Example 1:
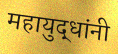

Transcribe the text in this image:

महायुद्धांनी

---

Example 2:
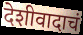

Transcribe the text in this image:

देशीवादाचं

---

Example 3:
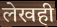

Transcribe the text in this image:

लेखही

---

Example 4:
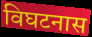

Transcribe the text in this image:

विघटनास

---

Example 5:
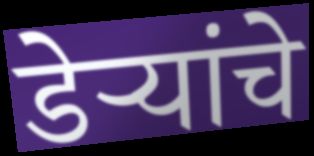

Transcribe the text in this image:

डेर्‍यांचे